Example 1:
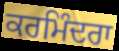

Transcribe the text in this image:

ਕਰਮਿੰਦਰਾ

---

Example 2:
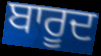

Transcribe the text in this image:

ਬਾਰੂਦ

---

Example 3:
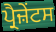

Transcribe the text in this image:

ਪ੍ਰੈਜ਼ੇਂਟਸ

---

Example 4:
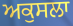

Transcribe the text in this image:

ਅਕੁਸਲਾ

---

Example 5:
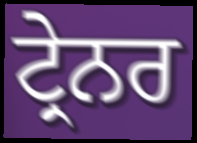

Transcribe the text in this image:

ਟ੍ਰੇਨਰ